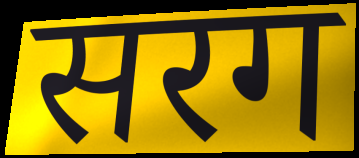
सरग